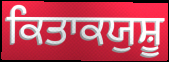
ਕਿਤਾਕਯੁਸ਼ੂ